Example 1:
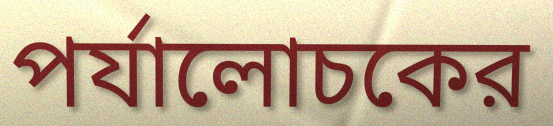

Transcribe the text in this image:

পর্যালোচকের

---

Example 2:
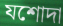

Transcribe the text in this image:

যশোদা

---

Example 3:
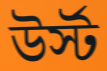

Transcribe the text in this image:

উর্স্ট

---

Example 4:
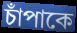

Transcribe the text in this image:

চাঁপাকে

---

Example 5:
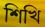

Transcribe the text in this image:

শিখি